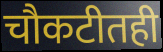
चौकटीतही